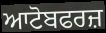
ਆਟੋਬਫਰਜ਼